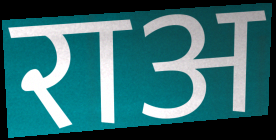
राअ